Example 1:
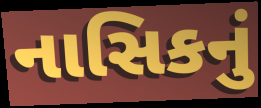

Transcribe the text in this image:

નાસિકનું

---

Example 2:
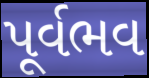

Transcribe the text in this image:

પૂર્વભવ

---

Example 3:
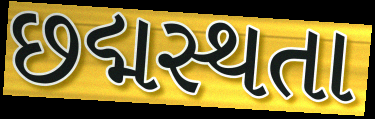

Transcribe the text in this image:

છદ્મસ્થતા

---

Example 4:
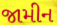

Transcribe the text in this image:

જામીન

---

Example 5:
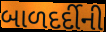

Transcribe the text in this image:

બાળદર્દીની